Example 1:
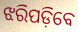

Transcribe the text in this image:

ଝରିପଡ଼ିବେ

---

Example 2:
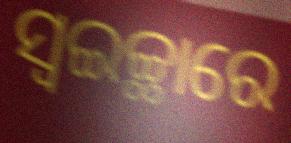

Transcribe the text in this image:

ସ୍ଵଇଚ୍ଛାରେ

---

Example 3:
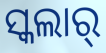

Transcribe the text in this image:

ସ୍କଲାର୍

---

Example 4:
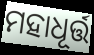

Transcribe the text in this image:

ମହାଧୂର୍ତ୍ତ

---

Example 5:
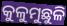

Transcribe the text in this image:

କୁଳୁମୁଛୁଳି